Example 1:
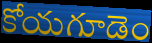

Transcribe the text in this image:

కోయగూడెం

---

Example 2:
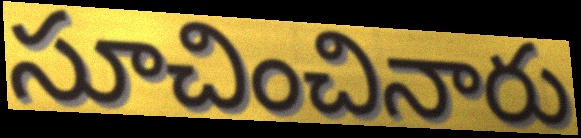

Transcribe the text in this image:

సూచించినారు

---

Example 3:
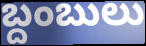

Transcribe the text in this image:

బ్దంబులు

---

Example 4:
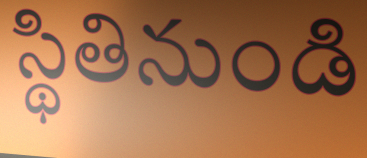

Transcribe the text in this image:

స్థితినుండి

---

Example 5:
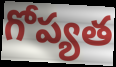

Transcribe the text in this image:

గోప్యత